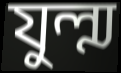
যুল্ম